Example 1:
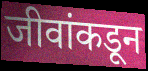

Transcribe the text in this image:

जीवांकडून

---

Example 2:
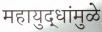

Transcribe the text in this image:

महायुद्धांमुळे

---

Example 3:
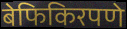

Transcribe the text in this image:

बेफिकिरपणे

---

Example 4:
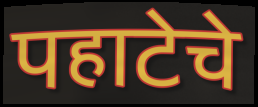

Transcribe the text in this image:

पहाटेचे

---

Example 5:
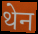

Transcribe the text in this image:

थेन